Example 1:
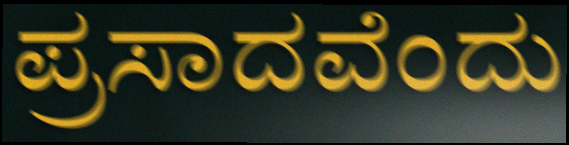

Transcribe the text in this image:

ಪ್ರಸಾದವೆಂದು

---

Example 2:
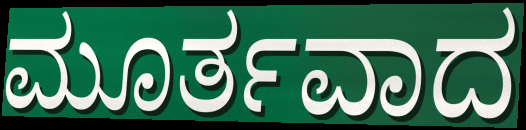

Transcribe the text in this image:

ಮೂರ್ತವಾದ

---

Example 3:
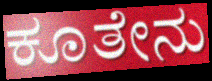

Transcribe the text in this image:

ಕೂತೇನು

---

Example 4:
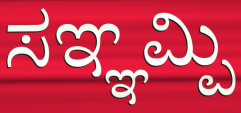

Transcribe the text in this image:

ಸಞ್ಞಮ್ಪಿ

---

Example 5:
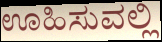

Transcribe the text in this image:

ಊಹಿಸುವಲ್ಲಿ